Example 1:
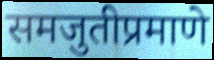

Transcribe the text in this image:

समजुतीप्रमाणे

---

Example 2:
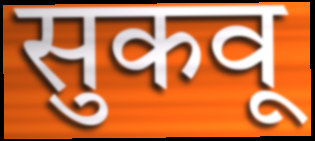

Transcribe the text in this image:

सुकवू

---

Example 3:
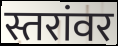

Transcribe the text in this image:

स्तरांवर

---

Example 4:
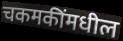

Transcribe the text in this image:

चकमकींमधील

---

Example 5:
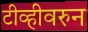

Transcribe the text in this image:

टीव्हीवरुन